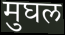
मुघल